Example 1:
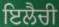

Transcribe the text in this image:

ਇਲੈਚੀ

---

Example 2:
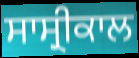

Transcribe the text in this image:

ਸਾਸ੍ਰੀਕਾਲ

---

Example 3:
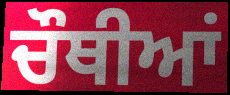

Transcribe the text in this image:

ਚੌਥੀਆਂ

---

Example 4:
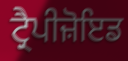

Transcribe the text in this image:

ਟ੍ਰੈਪੀਜ਼ੋਇਡ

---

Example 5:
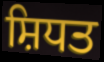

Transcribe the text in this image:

ਸ਼ਿਧਤ